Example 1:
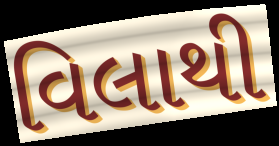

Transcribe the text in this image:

વિલાથી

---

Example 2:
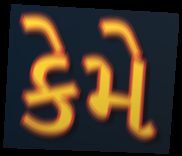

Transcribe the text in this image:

કેમે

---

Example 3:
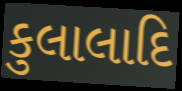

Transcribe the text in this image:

કુલાલાદિ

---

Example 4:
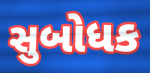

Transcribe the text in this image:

સુબોધક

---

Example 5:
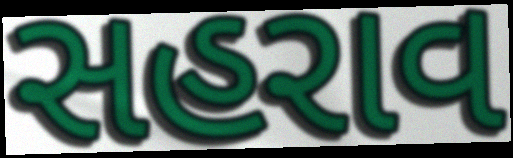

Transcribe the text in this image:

સહરાવ